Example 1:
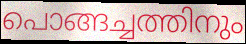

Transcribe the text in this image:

പൊങ്ങച്ചത്തിനും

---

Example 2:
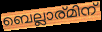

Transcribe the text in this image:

ബെല്ലാര്മിന്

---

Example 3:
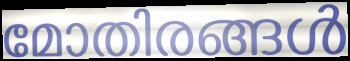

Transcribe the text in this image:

മോതിരങ്ങൾ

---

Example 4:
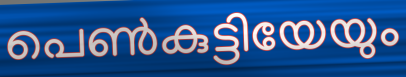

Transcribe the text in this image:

പെൺകുട്ടിയേയും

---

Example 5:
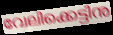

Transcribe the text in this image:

വേലിക്കെട്ടിനു